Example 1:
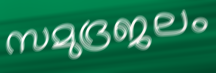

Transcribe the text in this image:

സമുദ്രജലം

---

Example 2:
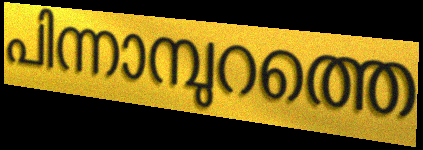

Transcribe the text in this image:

പിന്നാമ്പുറത്തെ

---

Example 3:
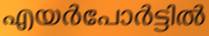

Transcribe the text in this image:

എയർപോർട്ടിൽ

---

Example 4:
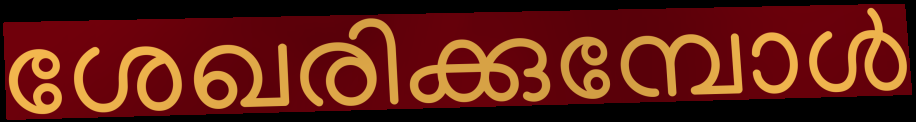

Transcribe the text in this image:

ശേഖരിക്കുമ്പോൾ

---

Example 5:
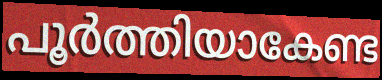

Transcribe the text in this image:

പൂർത്തിയാകേണ്ട